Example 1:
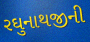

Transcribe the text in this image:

રઘુનાથજીની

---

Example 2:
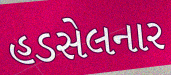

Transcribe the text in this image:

હડસેલનાર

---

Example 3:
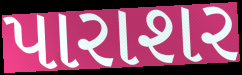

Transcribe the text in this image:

પારાશર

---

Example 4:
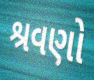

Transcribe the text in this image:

શ્રવણો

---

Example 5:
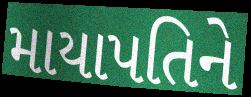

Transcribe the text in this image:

માયાપતિને